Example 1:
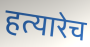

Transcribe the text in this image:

हत्यारेच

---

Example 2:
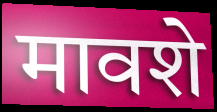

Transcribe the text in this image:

मावशे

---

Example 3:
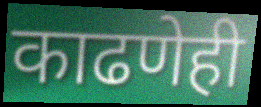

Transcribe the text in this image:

काढणेही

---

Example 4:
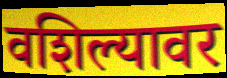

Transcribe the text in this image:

वशिल्यावर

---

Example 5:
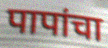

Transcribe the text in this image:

पापांचा